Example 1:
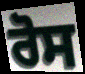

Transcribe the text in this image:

ਰੋਸ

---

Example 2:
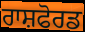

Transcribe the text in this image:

ਰਾਸ਼ਫੋਰਡ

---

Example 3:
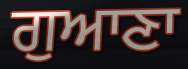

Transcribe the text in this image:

ਗੁਆਣਾ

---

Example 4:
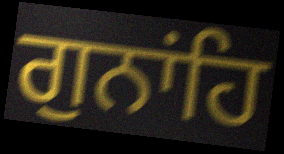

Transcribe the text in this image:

ਗੁਨਾਂਹਿ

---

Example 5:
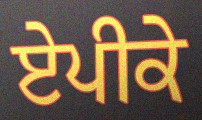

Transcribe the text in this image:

ਏਪੀਕੇ